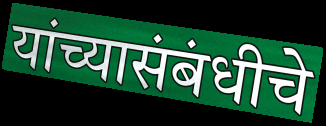
यांच्यासंबंधीचे